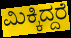
ಮಿಕ್ಕಿದ್ದರೆ